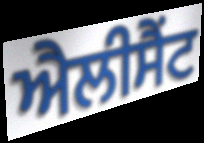
ਐਲੀਸੈਂਟ